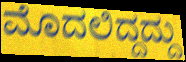
ಮೊದಲಿದ್ದದ್ದು